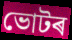
ভোটৰ